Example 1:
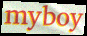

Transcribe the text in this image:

myboy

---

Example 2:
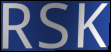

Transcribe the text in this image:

RSK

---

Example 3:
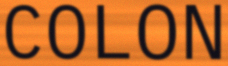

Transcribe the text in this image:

COLON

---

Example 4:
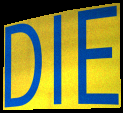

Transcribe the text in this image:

DIE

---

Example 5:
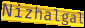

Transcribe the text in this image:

Nizhalgal